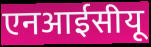
एनआईसीयू